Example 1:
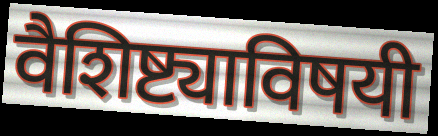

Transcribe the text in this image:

वैशिष्ट्याविषयी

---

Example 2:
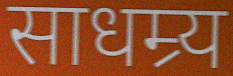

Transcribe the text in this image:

साधम्र्य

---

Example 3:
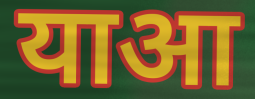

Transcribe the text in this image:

याआ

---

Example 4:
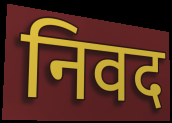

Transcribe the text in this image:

निवद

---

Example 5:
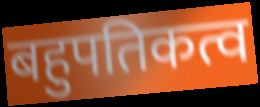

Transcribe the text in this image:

बहुपतिकत्व